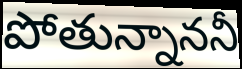
పోతున్నాననీ